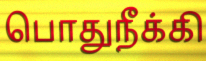
பொதுநீக்கி